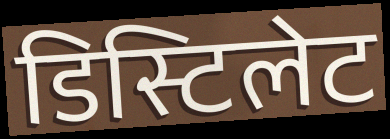
डिस्टिलेट